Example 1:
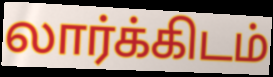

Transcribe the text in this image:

லார்க்கிடம்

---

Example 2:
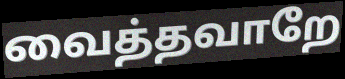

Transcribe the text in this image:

வைத்தவாறே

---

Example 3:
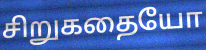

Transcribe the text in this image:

சிறுகதையோ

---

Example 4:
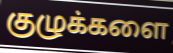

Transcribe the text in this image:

குழுக்களை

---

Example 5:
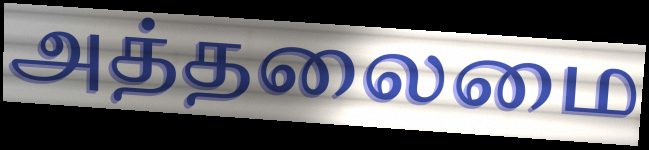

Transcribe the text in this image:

அத்தலைமை